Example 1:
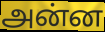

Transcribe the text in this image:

அன்ன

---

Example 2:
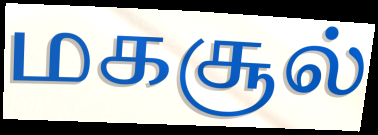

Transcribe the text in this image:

மகசூல்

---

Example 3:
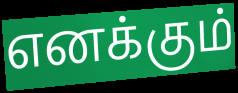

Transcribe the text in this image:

எனக்கும்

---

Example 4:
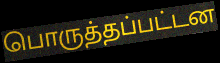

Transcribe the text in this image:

பொருத்தப்பட்டன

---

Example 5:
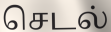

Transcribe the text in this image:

செடல்